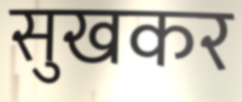
सुखकर